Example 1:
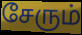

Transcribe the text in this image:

சேரும்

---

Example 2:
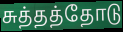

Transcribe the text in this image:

சுத்தத்தோடு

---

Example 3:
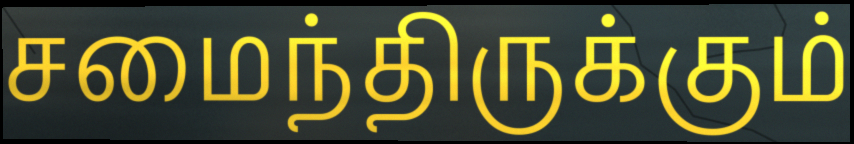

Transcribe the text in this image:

சமைந்திருக்கும்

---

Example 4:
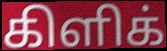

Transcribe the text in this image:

கிளிக்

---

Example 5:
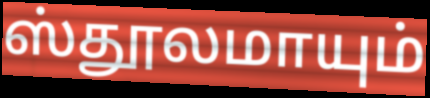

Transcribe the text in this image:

ஸ்தூலமாயும்